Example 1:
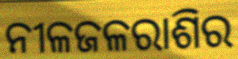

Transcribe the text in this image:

ନୀଳଜଳରାଶିର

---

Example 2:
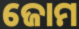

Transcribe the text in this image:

ଜୋମ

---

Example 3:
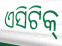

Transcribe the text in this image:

ଏସିଟିକ୍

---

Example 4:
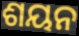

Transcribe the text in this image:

ଶୟନ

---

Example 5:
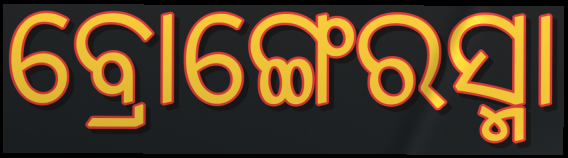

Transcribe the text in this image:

ବ୍ରୋଙ୍ଗେରସ୍ମା